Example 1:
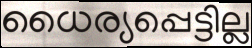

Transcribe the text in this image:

ധൈര്യപ്പെട്ടില്ല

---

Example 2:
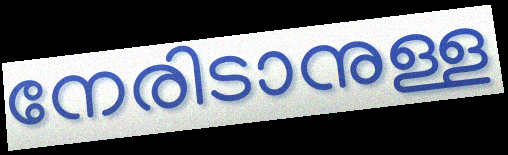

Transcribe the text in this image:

നേരിടാനുള്ള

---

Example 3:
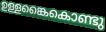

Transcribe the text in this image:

ഉള്ളങ്കൈകൊണ്ടു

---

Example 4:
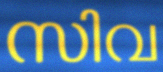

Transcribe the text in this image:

സിവ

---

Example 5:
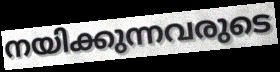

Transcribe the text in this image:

നയിക്കുന്നവരുടെ